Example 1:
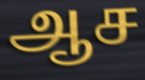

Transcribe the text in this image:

ஆச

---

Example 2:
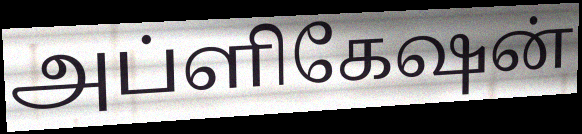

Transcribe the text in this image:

அப்ளிகேஷன்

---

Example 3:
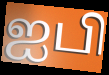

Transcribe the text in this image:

ஐபி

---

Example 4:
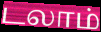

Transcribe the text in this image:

டலாம்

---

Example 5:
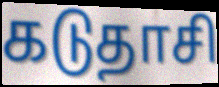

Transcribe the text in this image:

கடுதாசி